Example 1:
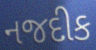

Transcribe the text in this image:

નજદીક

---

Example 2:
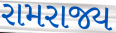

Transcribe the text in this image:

રામરાજ્ય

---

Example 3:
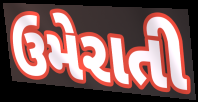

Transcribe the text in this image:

ઉમેરાતી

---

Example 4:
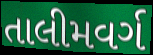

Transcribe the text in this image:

તાલીમવર્ગ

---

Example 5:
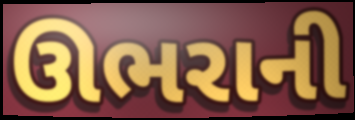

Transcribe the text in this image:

ઊભરાની